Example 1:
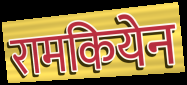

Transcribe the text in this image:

रामकियेन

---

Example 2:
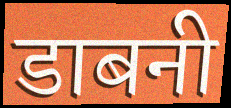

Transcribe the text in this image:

डाबनी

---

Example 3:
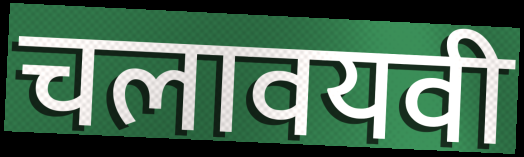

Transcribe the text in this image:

चलावयवी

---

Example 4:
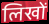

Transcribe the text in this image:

लिखों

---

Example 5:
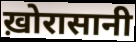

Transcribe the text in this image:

ख़ोरासानी